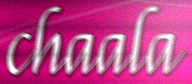
chaala